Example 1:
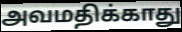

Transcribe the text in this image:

அவமதிக்காது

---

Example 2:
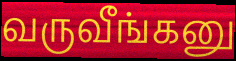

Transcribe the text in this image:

வருவீங்கனு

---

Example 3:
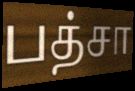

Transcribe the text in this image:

பத்சா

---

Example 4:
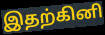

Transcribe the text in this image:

இதற்கினி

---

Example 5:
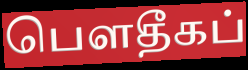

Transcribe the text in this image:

பௌதீகப்